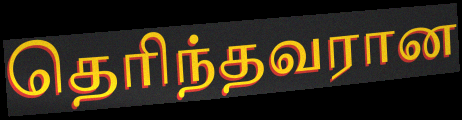
தெரிந்தவரான